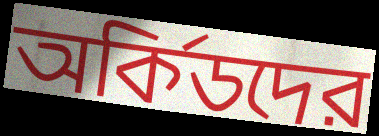
অর্কিডদের